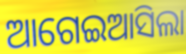
ଆଗେଇଆସିଲା